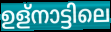
ഉള്നാട്ടിലെ